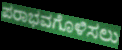
ಪರಾಭವಗೊಳಿಸಲು